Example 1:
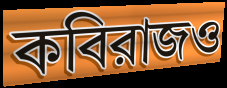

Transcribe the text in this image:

কবিরাজও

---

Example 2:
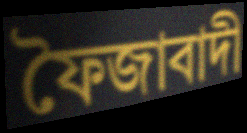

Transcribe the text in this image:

ফৈজাবাদী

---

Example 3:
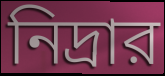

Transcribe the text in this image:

নিদ্রার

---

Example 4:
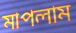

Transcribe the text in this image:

মাপলাম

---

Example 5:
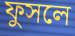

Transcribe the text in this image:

ফুসলে